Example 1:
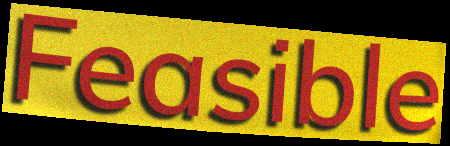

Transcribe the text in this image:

Feasible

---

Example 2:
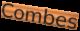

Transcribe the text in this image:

Combes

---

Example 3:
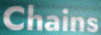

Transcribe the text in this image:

Chains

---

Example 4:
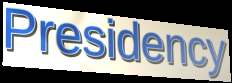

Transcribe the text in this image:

Presidency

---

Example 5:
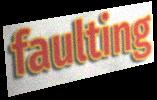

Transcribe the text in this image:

faulting